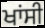
ਖਾਂਸੀ